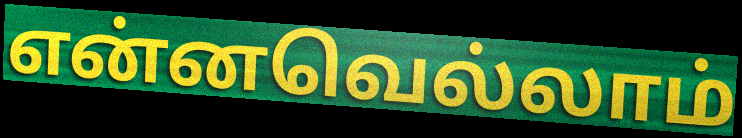
என்னவெல்லாம்